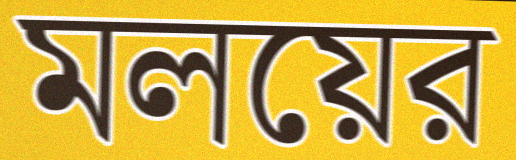
মলয়ের